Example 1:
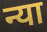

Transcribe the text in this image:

न्या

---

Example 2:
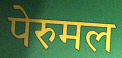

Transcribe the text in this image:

पेरुमल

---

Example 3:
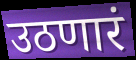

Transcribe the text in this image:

उठणारं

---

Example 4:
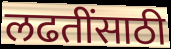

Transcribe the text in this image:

लढतींसाठी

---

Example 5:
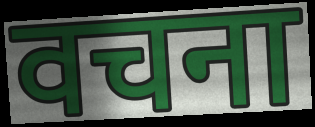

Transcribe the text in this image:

वचना